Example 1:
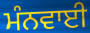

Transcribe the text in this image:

ਮੰਨਵਾਈ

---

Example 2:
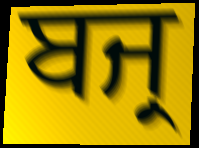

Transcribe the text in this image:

ਬਜ੍ਰ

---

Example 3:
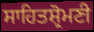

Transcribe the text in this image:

ਸਾਹਿਤਸ਼੍ਰੋਮਣੀ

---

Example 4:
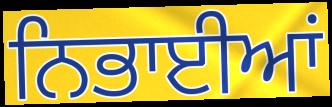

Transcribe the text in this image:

ਨਿਭਾਈਆਂ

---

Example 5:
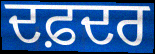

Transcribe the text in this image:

ਦਫ਼ਦਰ